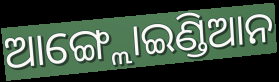
ଆଙ୍ଗ୍ଲୋଇଣ୍ଡିଆନ